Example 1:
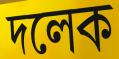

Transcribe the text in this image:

দলেক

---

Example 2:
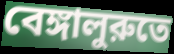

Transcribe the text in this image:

বেঙ্গালুরুতে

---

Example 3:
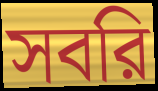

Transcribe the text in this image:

সবরি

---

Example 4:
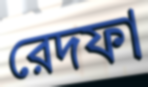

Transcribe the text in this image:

রেদফা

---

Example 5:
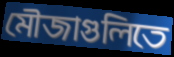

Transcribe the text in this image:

মৌজাগুলিতে